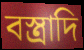
বস্ত্রাদি